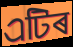
এটিৰ